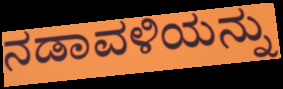
ನಡಾವಳಿಯನ್ನು